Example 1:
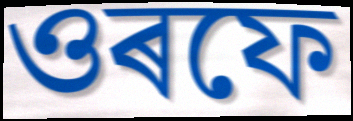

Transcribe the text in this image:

ওৰফে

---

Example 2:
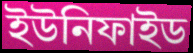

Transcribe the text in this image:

ইউনিফাইড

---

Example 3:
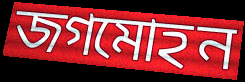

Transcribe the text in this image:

জগমোহন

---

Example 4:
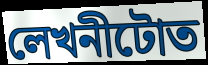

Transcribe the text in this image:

লেখনীটোত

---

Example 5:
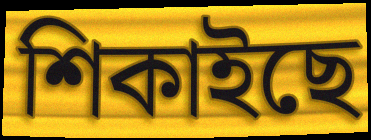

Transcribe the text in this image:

শিকাইছে